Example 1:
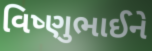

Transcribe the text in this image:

વિષ્ણુભાઈને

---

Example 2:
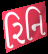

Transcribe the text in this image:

રિનિ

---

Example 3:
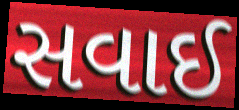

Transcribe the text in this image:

સવાઈ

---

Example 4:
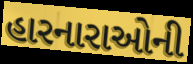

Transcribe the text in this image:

હારનારાઓની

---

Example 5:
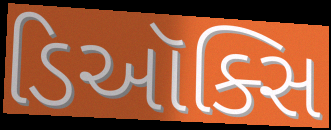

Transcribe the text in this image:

ડિઑક્સિ